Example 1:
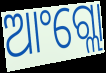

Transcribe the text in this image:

ଆଂଗ୍ଲୋ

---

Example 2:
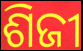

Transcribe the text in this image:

ଶିଜୀ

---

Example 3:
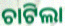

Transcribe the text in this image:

ଚାଟିଲା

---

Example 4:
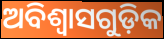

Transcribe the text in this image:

ଅବିଶ୍ଵାସଗୁଡ଼ିକ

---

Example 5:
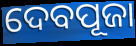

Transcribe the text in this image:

ଦେବପୂଜା